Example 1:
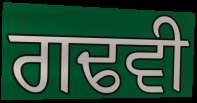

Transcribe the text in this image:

ਗਢਵੀ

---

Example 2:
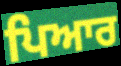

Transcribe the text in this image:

ਪਿਆਰ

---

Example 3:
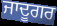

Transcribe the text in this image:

ਜਾਦੂਗਰ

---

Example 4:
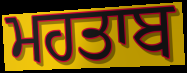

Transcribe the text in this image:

ਮਹਤਾਬ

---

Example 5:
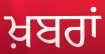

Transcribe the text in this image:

ਖ਼ਬਰਾਂ